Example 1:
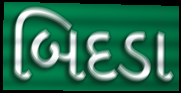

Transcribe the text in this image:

બિદડા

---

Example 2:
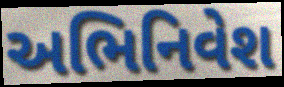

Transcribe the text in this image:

અભિનિવેશ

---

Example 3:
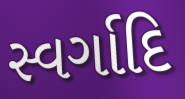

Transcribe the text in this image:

સ્વર્ગાદિ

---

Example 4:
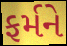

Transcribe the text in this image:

ફર્મને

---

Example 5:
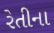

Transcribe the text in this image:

રેતીના